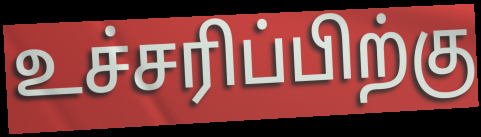
உச்சரிப்பிற்கு